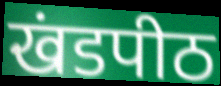
खंडपीठ